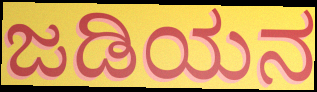
ಜಡಿಯನ